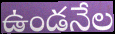
ఉండనేల